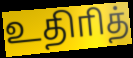
உதிரித்